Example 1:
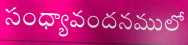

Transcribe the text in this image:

సంధ్యావందనములో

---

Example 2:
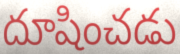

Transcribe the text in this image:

దూషించడు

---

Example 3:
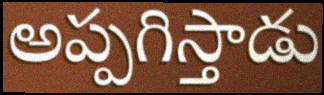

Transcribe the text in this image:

అప్పగిస్తాడు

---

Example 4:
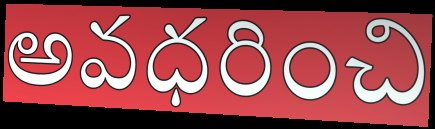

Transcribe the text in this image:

అవధరించి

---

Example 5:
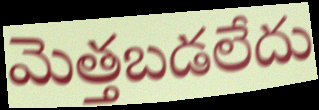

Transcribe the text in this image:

మెత్తబడలేదు